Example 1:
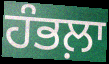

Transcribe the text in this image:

ਹੰਭਲ਼ਾ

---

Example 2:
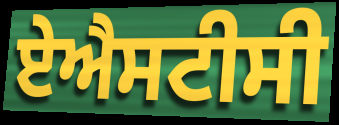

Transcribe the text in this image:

ਏਐਸਟੀਸੀ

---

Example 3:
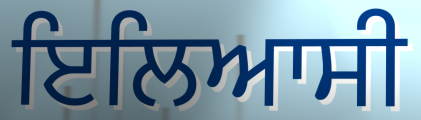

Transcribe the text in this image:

ਇਲਿਆਸੀ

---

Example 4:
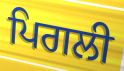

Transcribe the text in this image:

ਪਿਗਲੀ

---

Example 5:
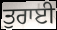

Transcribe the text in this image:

ਤੁਰਾਈ